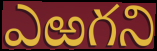
ఎఱగని